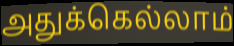
அதுக்கெல்லாம்